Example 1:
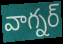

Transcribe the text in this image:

వాగ్నర్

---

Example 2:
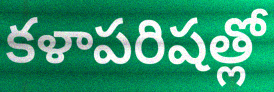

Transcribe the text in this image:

కళాపరిషత్లో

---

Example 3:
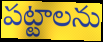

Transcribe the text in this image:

పట్టాలను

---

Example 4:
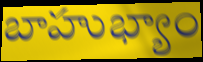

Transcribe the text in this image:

బాహుభ్యాం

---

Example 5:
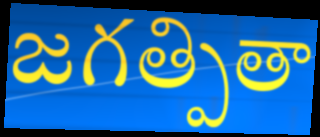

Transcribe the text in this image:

జగత్పితా